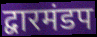
द्वारमंडप